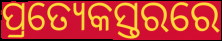
ପ୍ରତ୍ୟେକସ୍ତରରେ